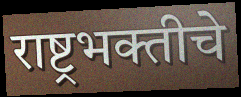
राष्ट्रभक्तीचे